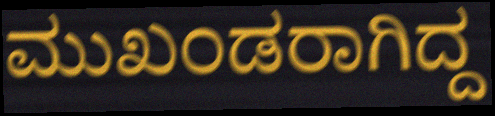
ಮುಖಂಡರಾಗಿದ್ದ